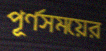
পূর্ণসময়ের